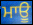
ਮਾਊ